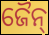
ଜୈନ୍